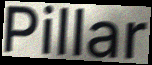
Pillar